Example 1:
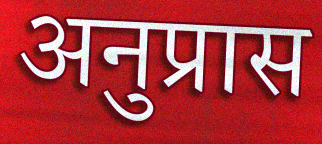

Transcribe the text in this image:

अनुप्रास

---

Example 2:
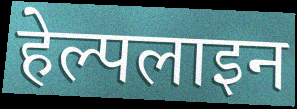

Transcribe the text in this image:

हेल्पलाइन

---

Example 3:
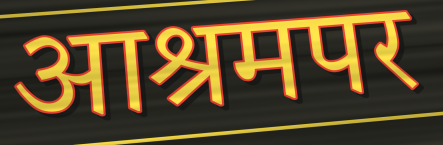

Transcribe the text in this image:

आश्रमपर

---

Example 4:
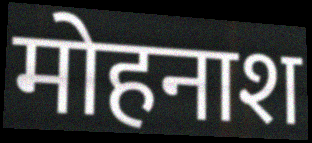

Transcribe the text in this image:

मोहनाश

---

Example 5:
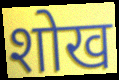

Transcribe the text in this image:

शोख